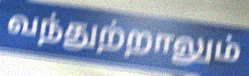
வந்துற்றாலும்